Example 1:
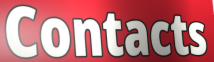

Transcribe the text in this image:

Contacts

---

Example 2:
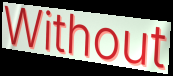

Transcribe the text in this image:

Without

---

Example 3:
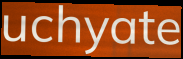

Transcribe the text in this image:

uchyate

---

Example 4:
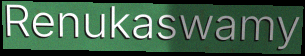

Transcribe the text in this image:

Renukaswamy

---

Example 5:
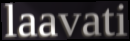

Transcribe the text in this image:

laavati